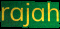
rajah